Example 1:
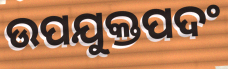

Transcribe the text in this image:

ଉପଯୁକ୍ତପଦଂ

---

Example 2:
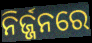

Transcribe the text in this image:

ନିର୍ଜ୍ଜନରେ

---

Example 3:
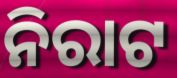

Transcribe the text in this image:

ନିରାଟ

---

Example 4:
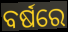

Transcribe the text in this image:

ବର୍ଷରେ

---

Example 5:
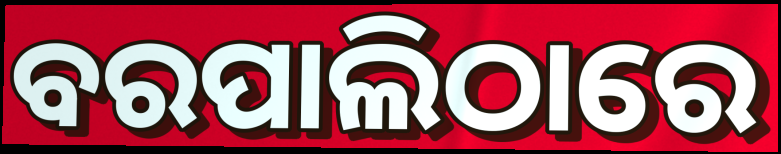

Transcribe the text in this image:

ବରପାଲିଠାରେ